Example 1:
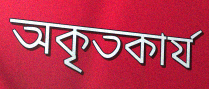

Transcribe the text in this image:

অকৃতকার্য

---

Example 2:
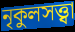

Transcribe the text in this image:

নৃকুলসত্ত্বা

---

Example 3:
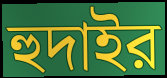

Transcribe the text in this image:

হুদাইর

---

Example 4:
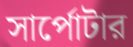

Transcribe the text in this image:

সার্পোটার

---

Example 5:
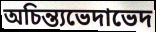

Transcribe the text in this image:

অচিন্ত্যভেদাভেদ